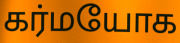
கர்மயோக